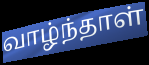
வாழ்ந்தாள்